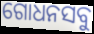
ଗୋଧନସବୁ